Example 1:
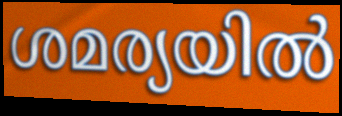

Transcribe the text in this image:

ശമര്യയിൽ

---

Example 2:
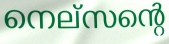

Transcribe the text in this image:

നെല്സന്റെ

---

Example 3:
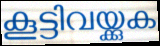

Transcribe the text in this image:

കൂട്ടിവയ്ക്കുക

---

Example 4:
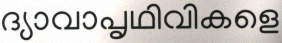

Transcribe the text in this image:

ദ്യാവാപൃഥിവികളെ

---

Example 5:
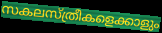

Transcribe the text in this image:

സകലസ്ത്രീകളെക്കാളും